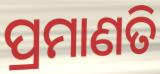
ପ୍ରମାଣତି